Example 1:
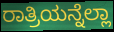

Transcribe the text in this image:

ರಾತ್ರಿಯನ್ನೆಲ್ಲಾ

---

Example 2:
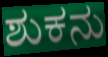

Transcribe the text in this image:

ಶುಕನು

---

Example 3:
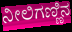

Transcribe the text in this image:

ನೀಲಿಗಣ್ಣಿನ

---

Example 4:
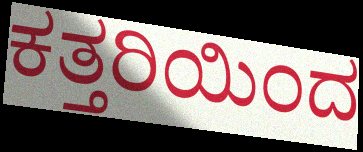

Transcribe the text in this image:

ಕತ್ತರಿಯಿಂದ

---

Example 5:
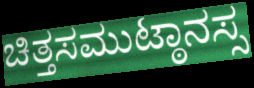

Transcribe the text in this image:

ಚಿತ್ತಸಮುಟ್ಠಾನಸ್ಸ